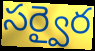
సర్వైర